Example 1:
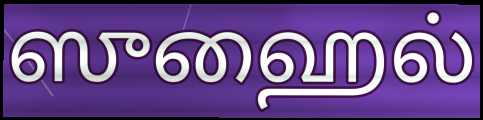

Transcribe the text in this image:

ஸுஹைல்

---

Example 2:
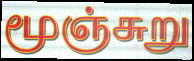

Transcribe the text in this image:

மூஞ்சுறு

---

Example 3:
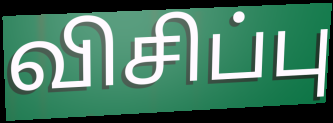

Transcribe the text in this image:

விசிப்பு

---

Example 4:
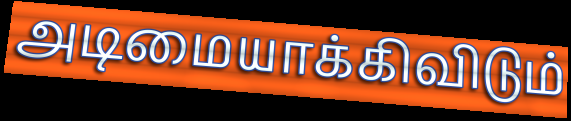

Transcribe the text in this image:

அடிமையாக்கிவிடும்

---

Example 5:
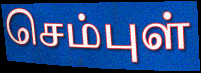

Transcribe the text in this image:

செம்புள்